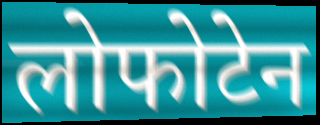
लोफोटेन